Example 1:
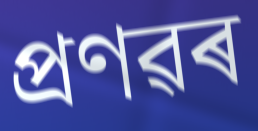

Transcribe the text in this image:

প্ৰণৱৰ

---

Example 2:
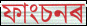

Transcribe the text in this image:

ফাংচনৰ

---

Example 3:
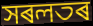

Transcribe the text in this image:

সৰলতৰ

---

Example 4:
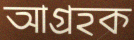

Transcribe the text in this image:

আগ্ৰহক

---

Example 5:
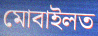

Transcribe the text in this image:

মোবাইলত